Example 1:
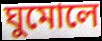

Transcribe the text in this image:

ঘুমোলে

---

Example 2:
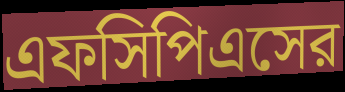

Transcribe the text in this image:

এফসিপিএসের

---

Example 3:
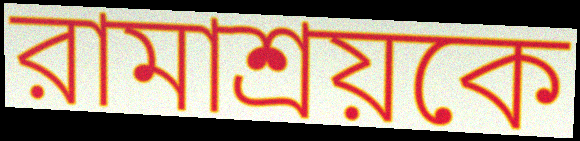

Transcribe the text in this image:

রামাশ্রয়কে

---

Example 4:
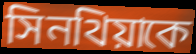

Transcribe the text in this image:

সিনথিয়াকে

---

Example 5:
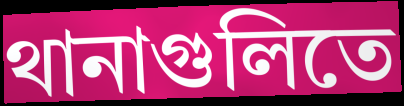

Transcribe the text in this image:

থানাগুলিতে